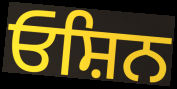
ਓਸ਼ਿਨ